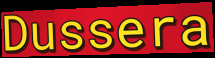
Dussera